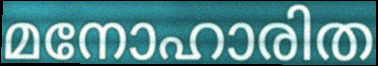
മനോഹാരിത